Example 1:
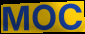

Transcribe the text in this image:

MOC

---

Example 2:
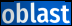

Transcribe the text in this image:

oblast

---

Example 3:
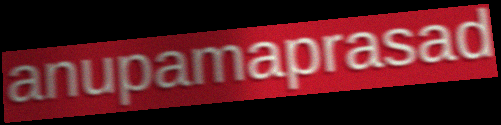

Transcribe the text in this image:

anupamaprasad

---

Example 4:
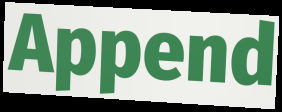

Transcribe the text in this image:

Append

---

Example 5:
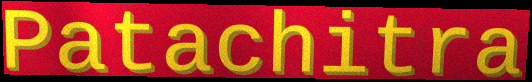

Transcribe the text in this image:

Patachitra